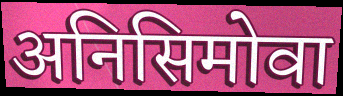
अनिसिमोवा